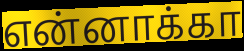
என்னாக்கா